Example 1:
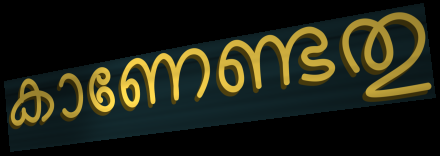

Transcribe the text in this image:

കാണേണ്ടതു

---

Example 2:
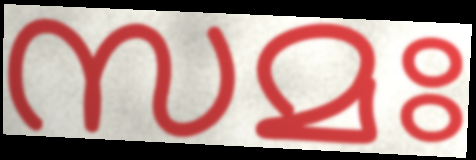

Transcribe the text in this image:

സമഃ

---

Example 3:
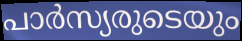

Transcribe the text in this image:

പാർസ്യരുടെയും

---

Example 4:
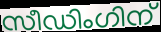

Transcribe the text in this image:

സീഡിംഗിന്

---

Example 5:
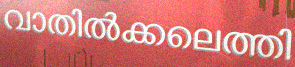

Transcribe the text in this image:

വാതിൽക്കലെത്തി